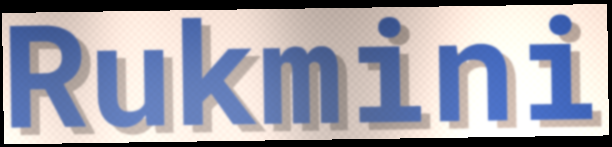
Rukmini